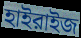
হাইরাইজ